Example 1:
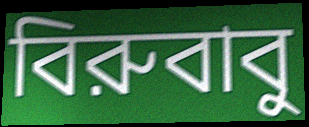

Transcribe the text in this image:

বিরুবাবু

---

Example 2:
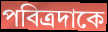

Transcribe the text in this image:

পবিত্রদাকে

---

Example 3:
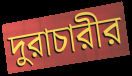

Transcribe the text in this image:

দুরাচারীর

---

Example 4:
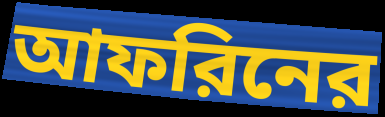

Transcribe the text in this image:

আফরিনের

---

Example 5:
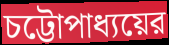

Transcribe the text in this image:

চট্টোপাধ্যয়ের